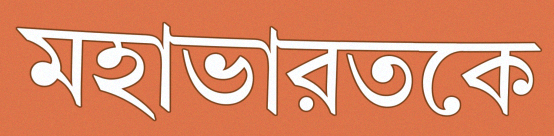
মহাভারতকে